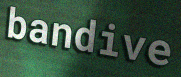
bandive